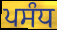
ਪਸੰਧ